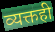
व्यक्तही